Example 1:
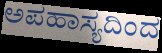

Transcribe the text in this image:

ಅಪಹಾಸ್ಯದಿಂದ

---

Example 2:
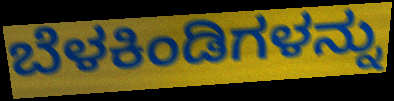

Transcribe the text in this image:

ಬೆಳಕಿಂಡಿಗಳನ್ನು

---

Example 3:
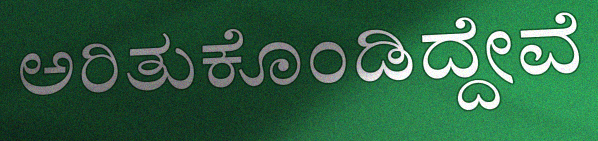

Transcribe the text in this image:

ಅರಿತುಕೊಂಡಿದ್ದೇವೆ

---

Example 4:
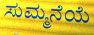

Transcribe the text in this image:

ಸುಮ್ಮನೆಯೆ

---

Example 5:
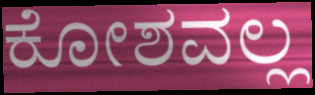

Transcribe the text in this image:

ಕೋಶವಲ್ಲ